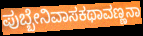
ಪುಬ್ಬೇನಿವಾಸಕಥಾವಣ್ಣನಾ